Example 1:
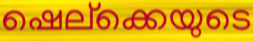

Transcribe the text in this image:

ഷെല്ക്കെയുടെ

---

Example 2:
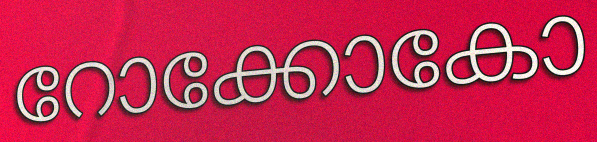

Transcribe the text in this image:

റോക്കോകോ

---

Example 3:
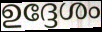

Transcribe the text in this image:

ഉദ്ദേശം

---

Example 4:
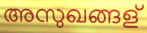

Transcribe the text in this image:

അസുഖങ്ങള്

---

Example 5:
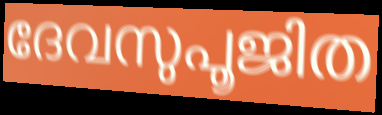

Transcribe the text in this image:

ദേവസുപൂജിത